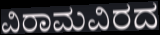
ವಿರಾಮವಿರದ